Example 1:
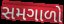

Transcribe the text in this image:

સમગાળો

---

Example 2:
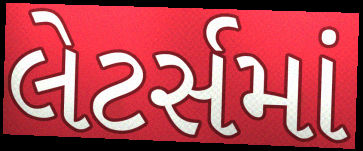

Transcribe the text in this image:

લેટર્સમાં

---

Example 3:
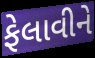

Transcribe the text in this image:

ફેલાવીને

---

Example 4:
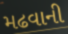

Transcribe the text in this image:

મઢવાની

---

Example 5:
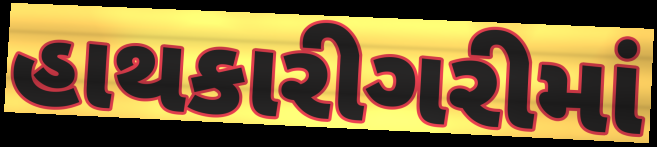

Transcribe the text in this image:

હાથકારીગરીમાં